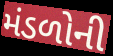
મંડળોની